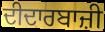
ਦੀਦਾਰਬਾਜ਼ੀ